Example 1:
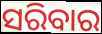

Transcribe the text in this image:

ସରିବାର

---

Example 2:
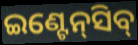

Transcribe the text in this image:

ଇଣ୍ଟେନ୍‍ସିବ୍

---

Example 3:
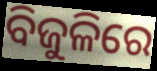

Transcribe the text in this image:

ବିଜୁଳିରେ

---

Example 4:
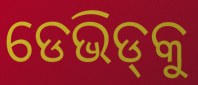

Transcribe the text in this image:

ଡେଭିଡ୍‍କୁ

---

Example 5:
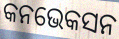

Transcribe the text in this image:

କନଭେକସନ